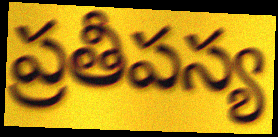
ప్రతీపస్య